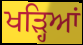
ਖੜ੍ਹਿਆਂ